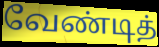
வேண்டித்